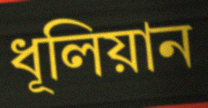
ধূলিয়ান